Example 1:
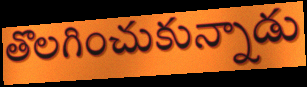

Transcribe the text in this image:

తొలగించుకున్నాడు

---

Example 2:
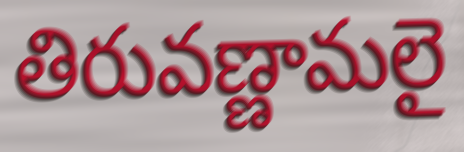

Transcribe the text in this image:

తిరువణ్ణామలై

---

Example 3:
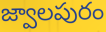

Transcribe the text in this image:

జ్వాలపురం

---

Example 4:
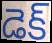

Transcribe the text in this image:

డెక్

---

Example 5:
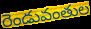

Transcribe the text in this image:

రెండువంతుల